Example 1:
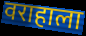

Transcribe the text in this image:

वराहाला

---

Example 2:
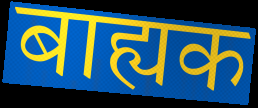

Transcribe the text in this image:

बाह्यक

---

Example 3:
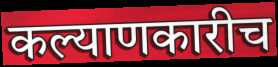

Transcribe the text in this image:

कल्याणकारीच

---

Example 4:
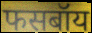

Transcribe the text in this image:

फसबॉय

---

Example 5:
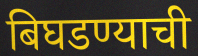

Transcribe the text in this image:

बिघडण्याची